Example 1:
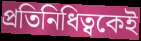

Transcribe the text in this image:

প্রতিনিধিত্বকেই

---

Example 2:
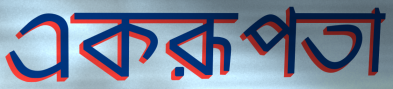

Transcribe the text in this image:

একরূপতা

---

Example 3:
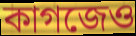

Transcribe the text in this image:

কাগজেও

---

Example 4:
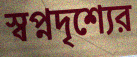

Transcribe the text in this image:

স্বপ্নদৃশ্যের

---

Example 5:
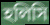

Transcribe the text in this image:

হলিসি